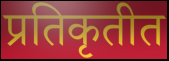
प्रतिकृतीत